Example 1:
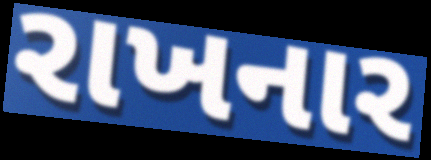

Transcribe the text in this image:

રાખનાર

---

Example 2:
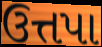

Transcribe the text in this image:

ઉત્તપા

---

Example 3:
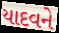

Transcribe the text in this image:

યાદવને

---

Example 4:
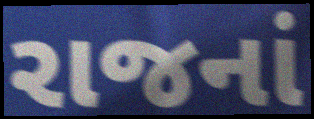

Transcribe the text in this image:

રાજનાં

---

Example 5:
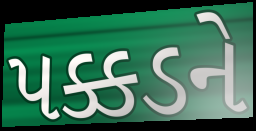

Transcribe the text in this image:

પક્કડને